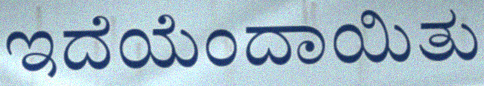
ಇದೆಯೆಂದಾಯಿತು